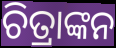
ଚିତ୍ରାଙ୍କନ